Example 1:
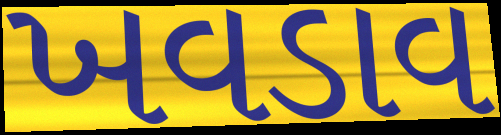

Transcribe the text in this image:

ખવડાવ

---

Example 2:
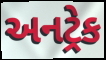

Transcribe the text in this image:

અનટ્રેક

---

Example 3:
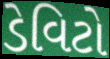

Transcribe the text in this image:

ડેવિટો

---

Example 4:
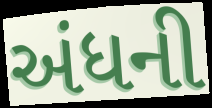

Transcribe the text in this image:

અંધની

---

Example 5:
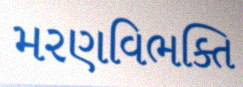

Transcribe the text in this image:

મરણવિભક્તિ